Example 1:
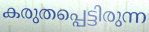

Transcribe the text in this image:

കരുതപ്പെട്ടിരുന്ന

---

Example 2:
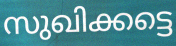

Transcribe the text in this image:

സുഖിക്കട്ടെ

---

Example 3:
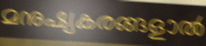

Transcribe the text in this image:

മനുഷ്യകരങ്ങളാൽ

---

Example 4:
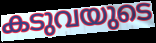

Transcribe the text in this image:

കടുവയുടെ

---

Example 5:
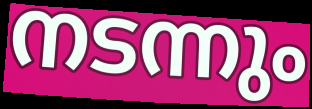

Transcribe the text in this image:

നടന്നും